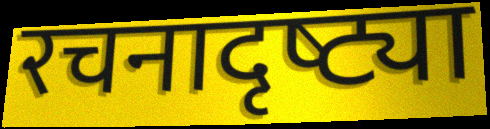
रचनादृष्ट्या